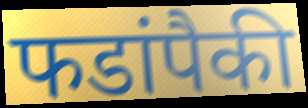
फडांपैकी